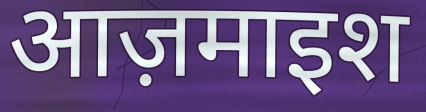
आज़माइश